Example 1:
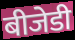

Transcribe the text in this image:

बीजेडी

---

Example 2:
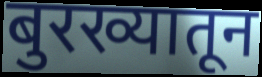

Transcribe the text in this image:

बुरख्यातून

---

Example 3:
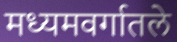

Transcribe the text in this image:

मध्यमवर्गातले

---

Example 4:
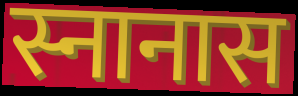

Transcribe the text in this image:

स्नानास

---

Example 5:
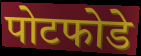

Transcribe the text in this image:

पोटफोडे